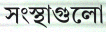
সংস্থাগুলো